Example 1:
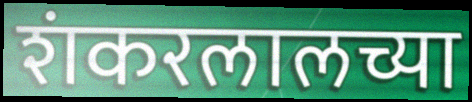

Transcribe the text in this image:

शंकरलालच्या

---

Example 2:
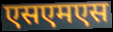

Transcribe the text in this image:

एसएमएस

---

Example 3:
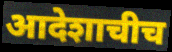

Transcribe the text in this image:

आदेशाचीच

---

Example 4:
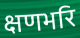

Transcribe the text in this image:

क्षणभरि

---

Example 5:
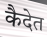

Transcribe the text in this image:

कैदेत